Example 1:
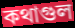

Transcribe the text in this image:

কথাগুল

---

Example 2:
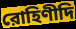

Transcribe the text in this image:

রোহিণীদি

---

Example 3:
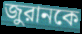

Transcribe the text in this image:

জুরানকে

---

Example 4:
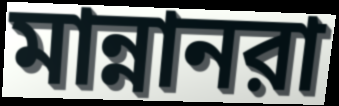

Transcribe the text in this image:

মান্নানরা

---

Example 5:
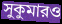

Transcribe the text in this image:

সুকুমারও